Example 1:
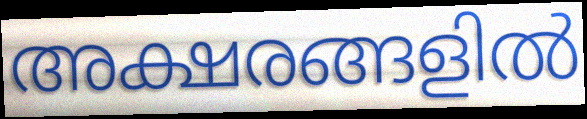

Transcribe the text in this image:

അക്ഷരങ്ങളിൽ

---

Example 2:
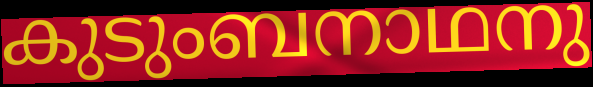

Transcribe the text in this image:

കുടുംബനാഥനു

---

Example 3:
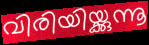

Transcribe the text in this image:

വിരിയിയ്ക്കുന്നൂ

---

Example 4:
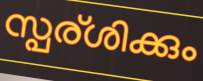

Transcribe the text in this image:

സ്പര്ശിക്കും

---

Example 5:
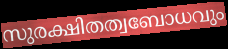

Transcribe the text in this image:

സുരക്ഷിതത്വബോധവും